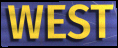
WEST